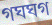
গঘঘগ